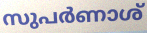
സുപർണാശ്